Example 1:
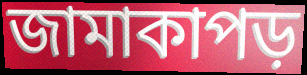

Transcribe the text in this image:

জামাকাপড়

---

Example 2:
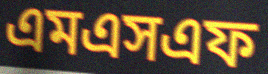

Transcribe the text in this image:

এমএসএফ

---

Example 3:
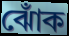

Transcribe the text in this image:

ঝোঁক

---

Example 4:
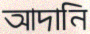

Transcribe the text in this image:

আদানি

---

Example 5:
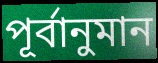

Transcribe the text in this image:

পূর্বানুমান